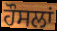
ਹੌਸਲਾਂ